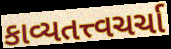
કાવ્યતત્ત્વચર્ચા